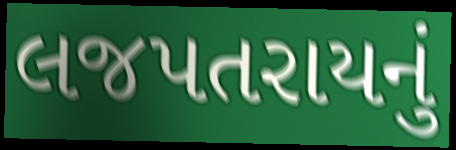
લજપતરાયનું